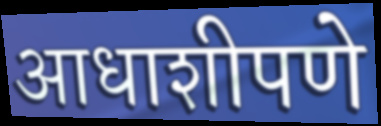
आधाशीपणे